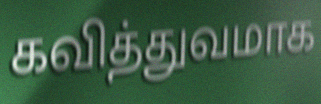
கவித்துவமாக